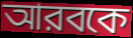
আরবকে